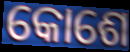
କୋଶେ